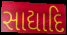
સાદ્યાદિ